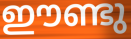
ഈണ്ടു